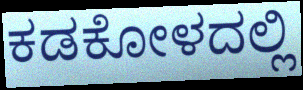
ಕಡಕೋಳದಲ್ಲಿ